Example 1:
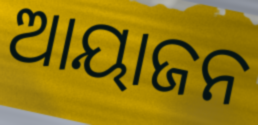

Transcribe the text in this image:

ଆୟାଜନ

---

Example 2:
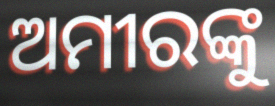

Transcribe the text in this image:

ଅମୀରଙ୍କୁ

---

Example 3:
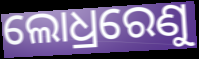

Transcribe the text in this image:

ଲୋଧ୍ରରେଣୁ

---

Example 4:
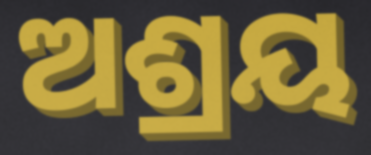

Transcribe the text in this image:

ଅଶ୍ରୟ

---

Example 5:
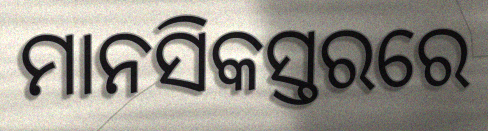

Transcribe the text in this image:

ମାନସିକସ୍ତରରେ